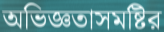
অভিজ্ঞতাসমষ্টির